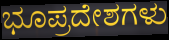
ಭೂಪ್ರದೇಶಗಳು